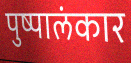
पुष्पालंकार